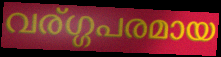
വര്ഗ്ഗപരമായ